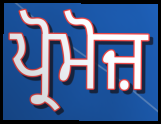
ਪ੍ਰੋਮੋਜ਼